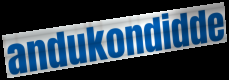
andukondidde